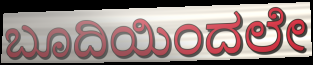
ಬೂದಿಯಿಂದಲೇ